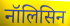
नॉलिसिन